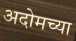
अदोमच्या